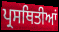
ਪ੍ਰਸਥਿਤੀਆਂ